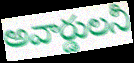
అవార్డులనీ